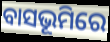
ବାସଭୂମିରେ